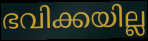
ഭവിക്കയില്ല